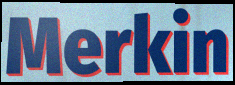
Merkin